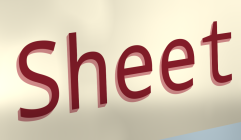
Sheet